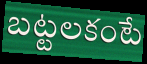
బట్టలకంటే